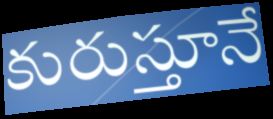
కురుస్తూనే